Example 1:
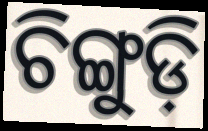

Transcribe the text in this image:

ଚିଙ୍ଗୁଡ଼ି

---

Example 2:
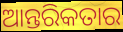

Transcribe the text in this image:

ଆନ୍ତରିକତାର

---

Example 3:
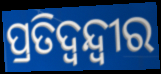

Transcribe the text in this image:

ପ୍ରତିଦ୍ବନ୍ଦ୍ବୀର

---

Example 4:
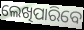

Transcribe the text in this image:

ଲେଖିପାରିବେ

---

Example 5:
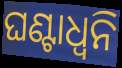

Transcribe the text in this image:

ଘଣ୍ଟାଧ୍ୱନି